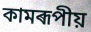
কামৰূপীয়